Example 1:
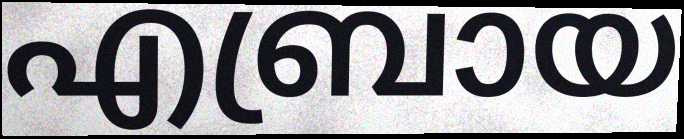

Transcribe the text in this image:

എബ്രായ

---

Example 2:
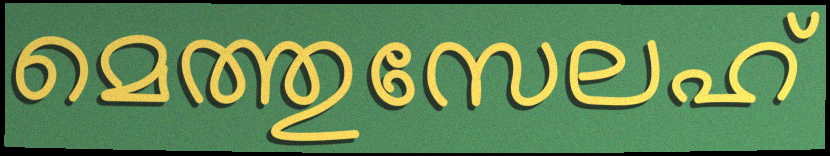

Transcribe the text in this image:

മെത്തുസേലഹ്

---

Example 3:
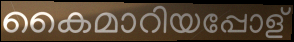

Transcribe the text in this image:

കൈമാറിയപ്പോള്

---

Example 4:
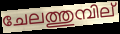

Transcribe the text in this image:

ചേലത്തുമ്പില്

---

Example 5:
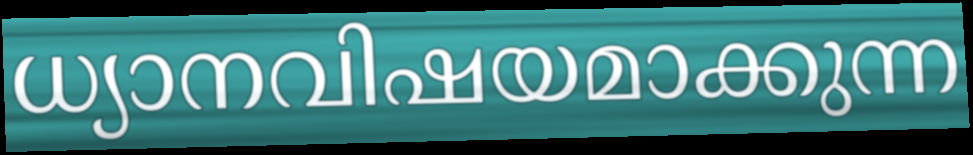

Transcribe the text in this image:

ധ്യാനവിഷയമാക്കുന്ന